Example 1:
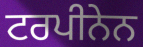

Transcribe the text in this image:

ਟਰਪੀਨੇਨ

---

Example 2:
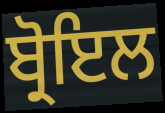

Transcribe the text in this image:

ਬ੍ਰੋਇਲ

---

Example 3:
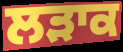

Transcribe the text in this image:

ਲੜਾਕ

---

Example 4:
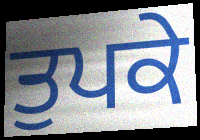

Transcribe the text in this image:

ਤੁਪਕੇ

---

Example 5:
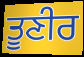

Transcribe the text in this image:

ਤੂਣੀਰ